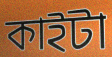
কাইটা